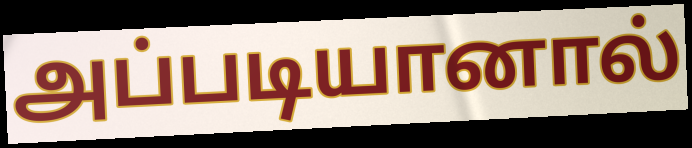
அப்படியானால்